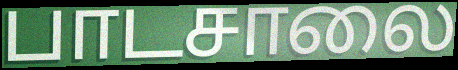
பாடசாலை